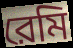
রেমি